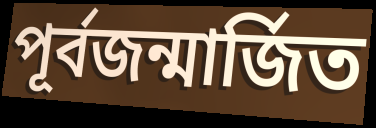
পূৰ্বজন্মাৰ্জিত